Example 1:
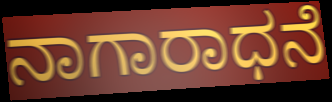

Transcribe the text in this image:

ನಾಗಾರಾಧನೆ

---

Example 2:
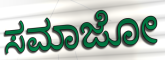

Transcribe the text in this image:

ಸಮಾಜೋ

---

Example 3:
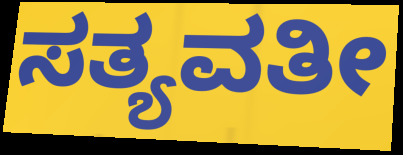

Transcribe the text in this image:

ಸತ್ಯವತೀ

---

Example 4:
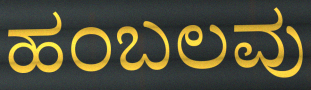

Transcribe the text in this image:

ಹಂಬಲವು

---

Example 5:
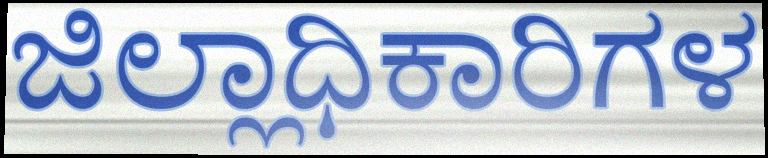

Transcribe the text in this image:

ಜಿಲ್ಲಾಧಿಕಾರಿಗಳ